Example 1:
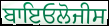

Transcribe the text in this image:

ਬਾਇਓਲੋਜੀਸ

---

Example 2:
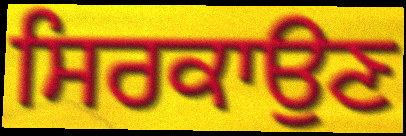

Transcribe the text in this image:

ਸਿਰਕਾਉਣ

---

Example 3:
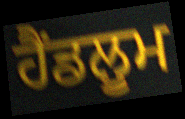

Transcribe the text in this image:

ਹੈਂਡਲੂਮ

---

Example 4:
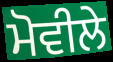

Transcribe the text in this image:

ਮੋਵੀਲੇ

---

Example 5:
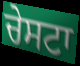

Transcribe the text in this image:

ਚੇਸਟਾ